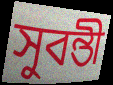
সুবন্তী